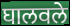
घालवले